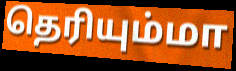
தெரியும்மா